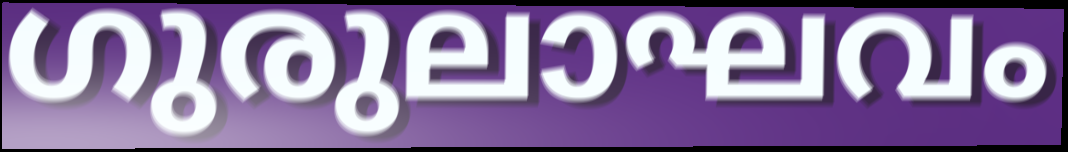
ഗുരുലാഘവം